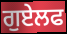
ਗੁਏਲਫ